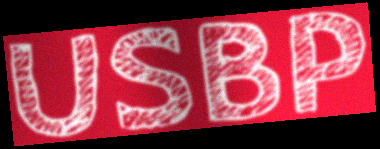
USBP